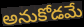
అనుకోడమే